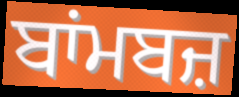
ਬਾਂਮਬਜ਼